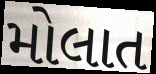
મોલાત